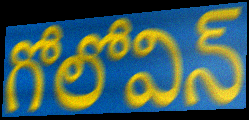
గోలోవిన్